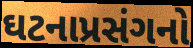
ઘટનાપ્રસંગનો